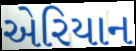
એરિયાન